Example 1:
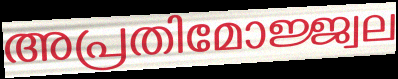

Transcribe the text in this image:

അപ്രതിമോജ്ജ്വല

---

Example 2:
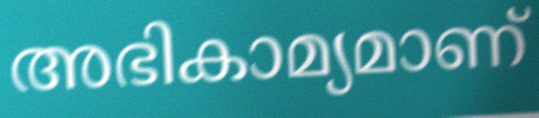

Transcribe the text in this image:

അഭികാമ്യമാണ്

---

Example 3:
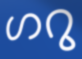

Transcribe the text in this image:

ഗറു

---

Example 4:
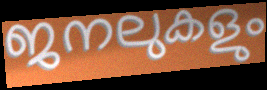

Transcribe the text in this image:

ജനലുകളും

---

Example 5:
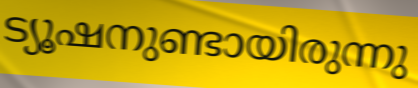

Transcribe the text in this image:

ട്യൂഷനുണ്ടായിരുന്നു